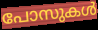
പോസുകൾ